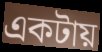
একটায়